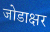
जोडाक्षर